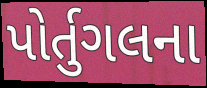
પોર્તુગલના